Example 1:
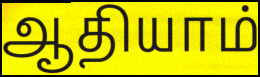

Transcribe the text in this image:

ஆதியாம்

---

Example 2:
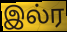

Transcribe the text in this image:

இல்ர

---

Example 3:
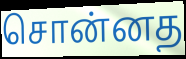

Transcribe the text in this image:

சொன்னத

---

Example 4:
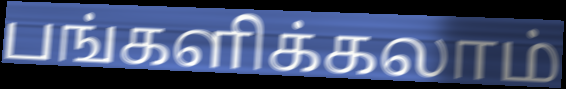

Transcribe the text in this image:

பங்களிக்கலாம்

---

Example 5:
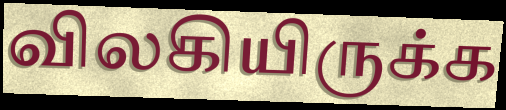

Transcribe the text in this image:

விலகியிருக்க